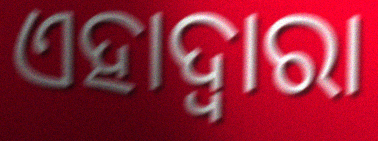
ଏହାଦ୍ୱାରା